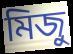
মিজু